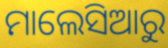
ମାଲେସିଆରୁ